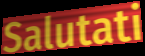
Salutati